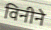
विनीने